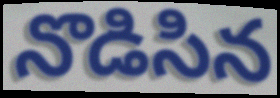
నొడిసిన